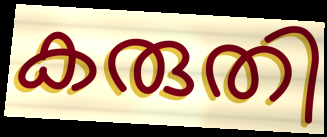
കരുതി